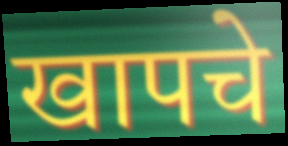
खापचे